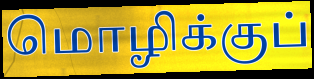
மொழிக்குப்